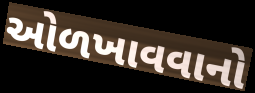
ઓળખાવવાનો